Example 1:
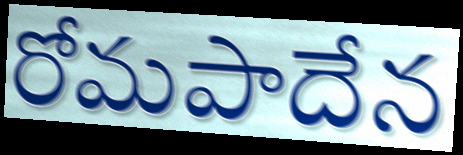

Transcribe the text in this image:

రోమపాదేన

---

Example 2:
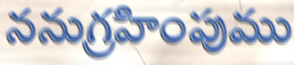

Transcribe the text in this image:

ననుగ్రహింపుము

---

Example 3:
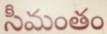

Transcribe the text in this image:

సీమంతం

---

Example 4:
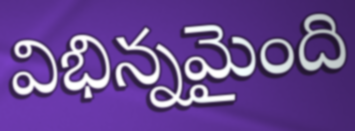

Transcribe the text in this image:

విభిన్నమైంది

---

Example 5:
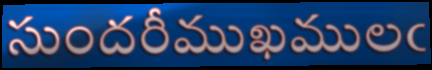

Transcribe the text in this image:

సుందరీముఖములఁ